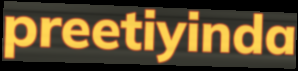
preetiyinda